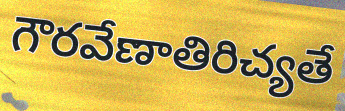
గౌరవేణాతిరిచ్యతే